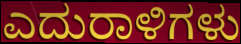
ಎದುರಾಳಿಗಳು